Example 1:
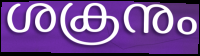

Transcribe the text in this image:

ശക്രനും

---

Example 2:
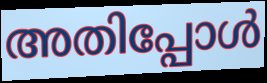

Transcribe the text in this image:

അതിപ്പോൾ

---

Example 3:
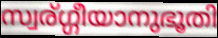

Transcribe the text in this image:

സ്വര്ഗ്ഗീയാനുഭൂതി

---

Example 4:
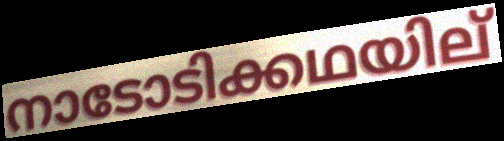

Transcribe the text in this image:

നാടോടിക്കഥയില്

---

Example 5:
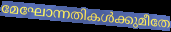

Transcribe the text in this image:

മേഘോന്നതികൾക്കുമീതേ